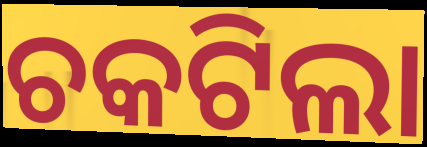
ଚକଟିଲା